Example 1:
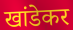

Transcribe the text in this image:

खांडेकर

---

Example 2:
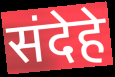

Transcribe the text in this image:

संदेहे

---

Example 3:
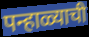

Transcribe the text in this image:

पन्हाळ्याची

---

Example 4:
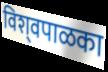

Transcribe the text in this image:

विश्वपाळका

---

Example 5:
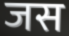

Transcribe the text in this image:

जस